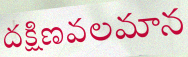
దక్షిణవలమాన